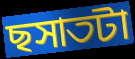
ছসাতটা